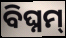
ବିଘ୍ନମ୍